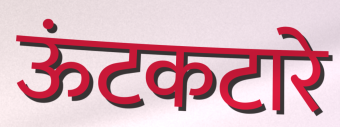
ऊंटकटारे